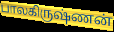
பாலகிருஷ்ணன்